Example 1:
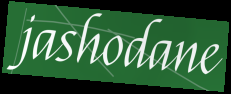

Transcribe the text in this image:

jashodane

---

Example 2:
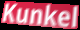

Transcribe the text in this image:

Kunkel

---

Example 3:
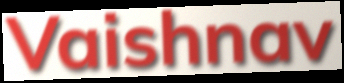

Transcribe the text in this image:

Vaishnav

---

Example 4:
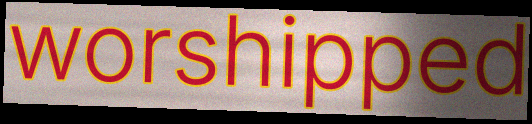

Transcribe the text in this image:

worshipped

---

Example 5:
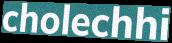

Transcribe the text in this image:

cholechhi